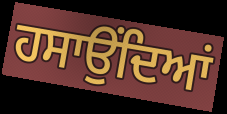
ਹਸਾਉਂਦਿਆਂ